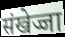
संखेज्जा